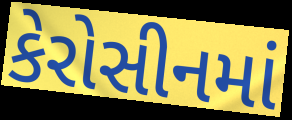
કેરોસીનમાં